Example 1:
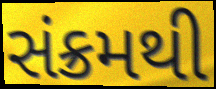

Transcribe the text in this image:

સંક્રમથી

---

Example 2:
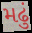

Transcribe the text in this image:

મઢું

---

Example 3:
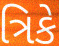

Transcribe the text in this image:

ત્રિકે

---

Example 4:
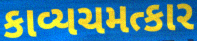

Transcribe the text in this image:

કાવ્યચમત્કાર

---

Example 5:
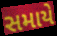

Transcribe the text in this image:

સમાયે